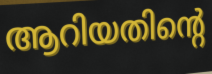
ആറിയതിന്റെ